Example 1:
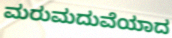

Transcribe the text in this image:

ಮರುಮದುವೆಯಾದ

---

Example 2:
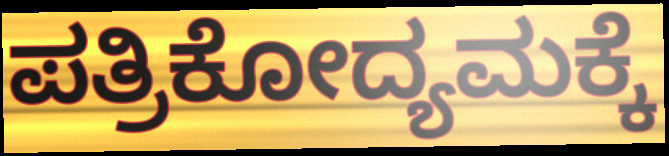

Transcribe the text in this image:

ಪತ್ರಿಕೋದ್ಯಮಕ್ಕೆ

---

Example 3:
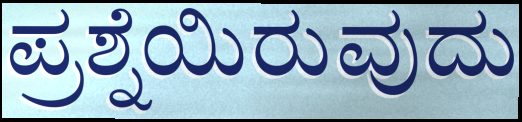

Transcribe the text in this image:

ಪ್ರಶ್ನೆಯಿರುವುದು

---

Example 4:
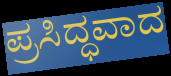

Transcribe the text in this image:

ಪ್ರಸಿದ್ಧವಾದ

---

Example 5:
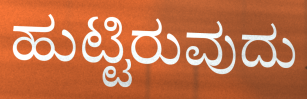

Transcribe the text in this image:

ಹುಟ್ಟಿರುವುದು